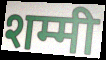
शम्मी